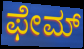
ಫೇಮ್